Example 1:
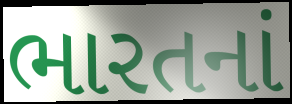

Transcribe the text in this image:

ભારતનાં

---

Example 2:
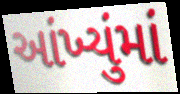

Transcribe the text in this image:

આંખ્યુંમાં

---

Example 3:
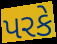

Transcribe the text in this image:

પરકે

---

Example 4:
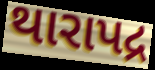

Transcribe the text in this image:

થારાપદ્ર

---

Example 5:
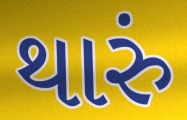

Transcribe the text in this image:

થારું